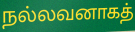
நல்லவனாகத்